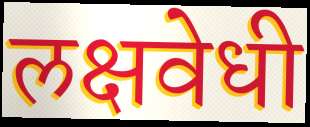
लक्षवेधी